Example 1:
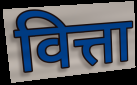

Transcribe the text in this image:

वित्ता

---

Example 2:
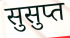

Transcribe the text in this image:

सुसुप्त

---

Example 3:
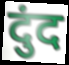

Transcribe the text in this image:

दुंद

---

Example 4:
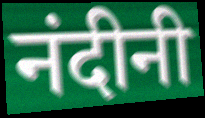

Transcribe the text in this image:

नंदीनी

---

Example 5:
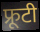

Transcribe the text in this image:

फ्रूटी